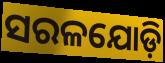
ସରଳଯୋଡ଼ି